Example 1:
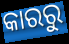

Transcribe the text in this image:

କାରରୁ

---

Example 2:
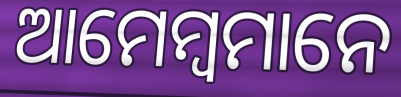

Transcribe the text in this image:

ଆମେମ୍ବମାନେ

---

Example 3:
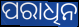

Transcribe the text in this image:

ପରାଧିନ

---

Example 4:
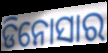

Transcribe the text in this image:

ଡିନୋସାର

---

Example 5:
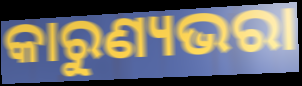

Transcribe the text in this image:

କାରୁଣ୍ୟଭରା